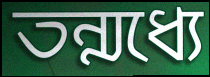
তন্মধ্যে